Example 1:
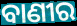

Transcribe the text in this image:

ବାଣୀର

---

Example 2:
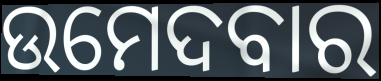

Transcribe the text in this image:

ଉମେଦବାର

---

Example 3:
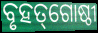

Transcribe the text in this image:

ବୃହତ୍‌ଗୋଷ୍ଠୀ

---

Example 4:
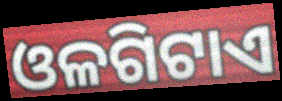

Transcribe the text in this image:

ଓଳଗିଟାଏ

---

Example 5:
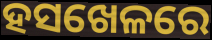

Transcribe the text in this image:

ହସଖେଳରେ